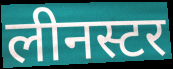
लीनस्टर